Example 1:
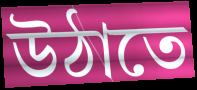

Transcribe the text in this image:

উঠাতে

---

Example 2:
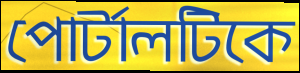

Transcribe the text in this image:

পোর্টালটিকে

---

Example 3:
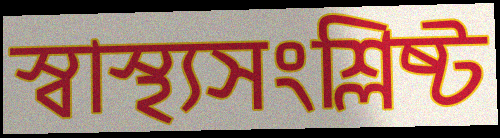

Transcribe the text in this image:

স্বাস্থ্যসংশ্লিষ্ট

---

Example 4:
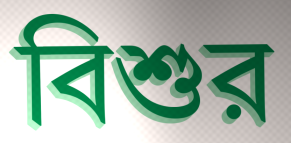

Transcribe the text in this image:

বিশুর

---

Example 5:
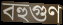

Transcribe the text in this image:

বহুগুণ